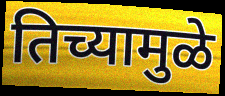
तिच्यामुळे